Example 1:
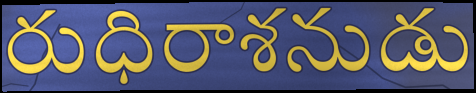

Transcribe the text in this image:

రుధిరాశనుడు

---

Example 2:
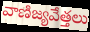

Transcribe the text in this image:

వాణిజ్యవేత్తలు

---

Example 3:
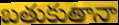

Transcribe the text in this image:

బతుకుతానా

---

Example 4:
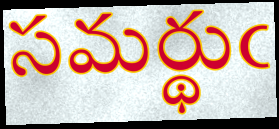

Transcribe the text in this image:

సమర్థుఁ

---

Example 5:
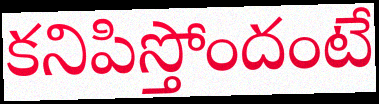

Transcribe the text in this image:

కనిపిస్తోందంటే